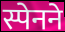
स्पेनने